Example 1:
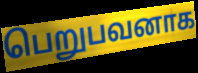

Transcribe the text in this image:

பெறுபவனாக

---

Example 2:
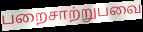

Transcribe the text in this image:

பறைசாற்றுபவை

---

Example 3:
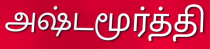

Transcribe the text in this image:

அஷ்டமூர்த்தி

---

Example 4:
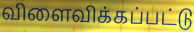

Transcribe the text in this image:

விளைவிக்கப்பட்டு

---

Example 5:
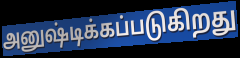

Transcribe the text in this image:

அனுஷ்டிக்கப்படுகிறது